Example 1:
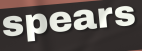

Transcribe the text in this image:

spears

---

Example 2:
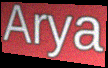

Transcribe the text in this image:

Arya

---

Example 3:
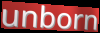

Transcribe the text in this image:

unborn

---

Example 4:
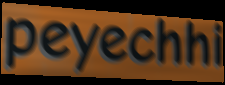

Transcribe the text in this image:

peyechhi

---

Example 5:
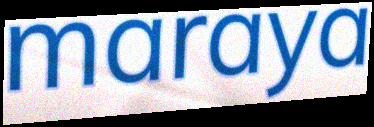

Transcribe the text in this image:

maraya